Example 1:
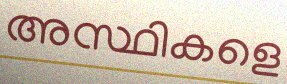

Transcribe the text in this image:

അസ്ഥികളെ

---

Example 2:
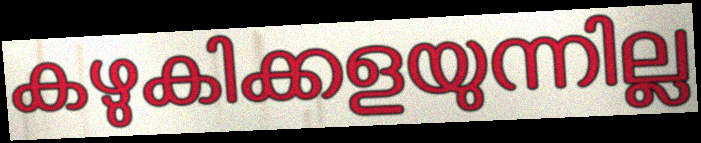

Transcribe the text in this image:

കഴുകിക്കളയുന്നില്ല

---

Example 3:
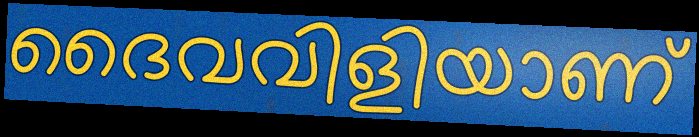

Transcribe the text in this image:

ദൈവവിളിയാണ്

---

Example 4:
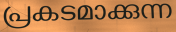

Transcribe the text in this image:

പ്രകടമാക്കുന്ന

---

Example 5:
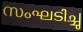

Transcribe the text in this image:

സംഘടിച്ചു